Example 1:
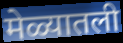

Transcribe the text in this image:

मेळ्यातली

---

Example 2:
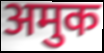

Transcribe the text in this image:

अमुक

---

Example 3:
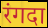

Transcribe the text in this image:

रंगदा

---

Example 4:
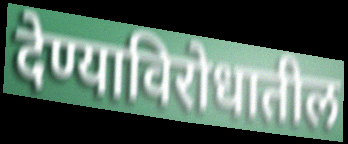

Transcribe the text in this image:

देण्याविरोधातील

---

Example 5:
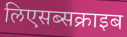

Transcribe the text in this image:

लिएसब्सक्राइब